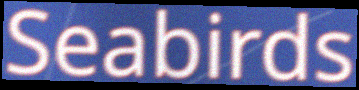
Seabirds